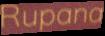
Rupana